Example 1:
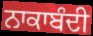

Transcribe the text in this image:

ਨਾਕਾਬੰਦੀ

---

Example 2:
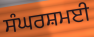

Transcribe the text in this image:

ਸੰਘਰਸ਼ਮਈ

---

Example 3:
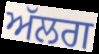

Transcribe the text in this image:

ਅੱਲਗ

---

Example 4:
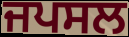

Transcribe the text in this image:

ਜਪਸਲ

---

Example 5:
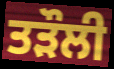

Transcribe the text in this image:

ਤੜੌਲੀ